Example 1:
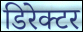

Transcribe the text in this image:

डिरेक्टर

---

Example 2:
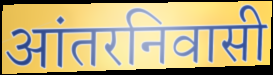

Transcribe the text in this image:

आंतरनिवासी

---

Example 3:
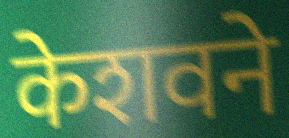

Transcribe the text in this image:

केशवने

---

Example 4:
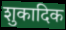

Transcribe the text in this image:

शुकादिक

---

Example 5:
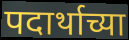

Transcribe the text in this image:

पदार्थाच्या